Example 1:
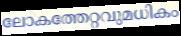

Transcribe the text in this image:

ലോകത്തേറ്റവുമധികം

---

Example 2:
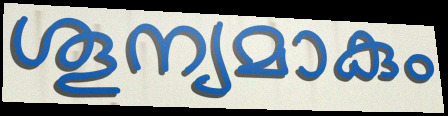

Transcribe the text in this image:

ശൂന്യമാകും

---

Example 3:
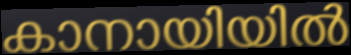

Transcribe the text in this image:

കാനായിയിൽ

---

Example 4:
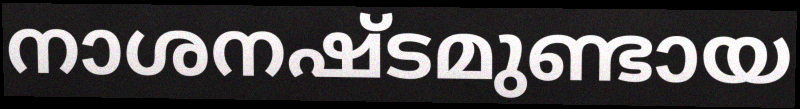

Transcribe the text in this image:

നാശനഷ്ടമുണ്ടായ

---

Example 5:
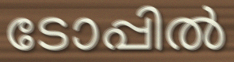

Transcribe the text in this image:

ടോപ്പിൽ